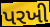
પરખી